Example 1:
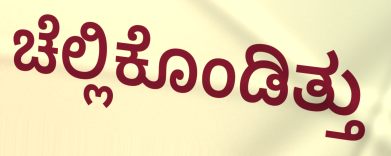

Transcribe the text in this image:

ಚೆಲ್ಲಿಕೊಂಡಿತ್ತು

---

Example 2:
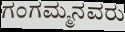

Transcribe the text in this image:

ಗಂಗಮ್ಮನವರು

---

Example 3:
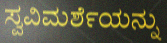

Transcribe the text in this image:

ಸ್ವವಿಮರ್ಶೆಯನ್ನು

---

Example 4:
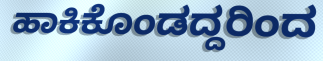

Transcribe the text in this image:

ಹಾಕಿಕೊಂಡದ್ದರಿಂದ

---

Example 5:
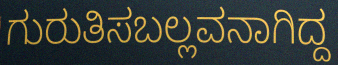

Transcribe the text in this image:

ಗುರುತಿಸಬಲ್ಲವನಾಗಿದ್ದ